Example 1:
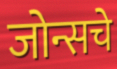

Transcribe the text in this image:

जोन्सचे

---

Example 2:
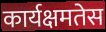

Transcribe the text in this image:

कार्यक्षमतेस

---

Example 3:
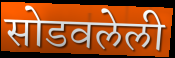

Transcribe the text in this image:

सोडवलेली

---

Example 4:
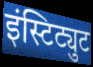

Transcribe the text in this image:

इंस्टिट्युट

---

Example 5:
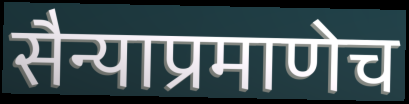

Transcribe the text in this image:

सैन्याप्रमाणेच